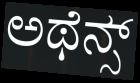
ಅಥೆನ್ಸ್